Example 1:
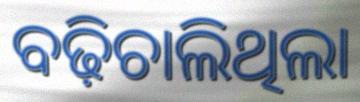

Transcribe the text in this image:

ବଢ଼ିଚାଲିଥିଲା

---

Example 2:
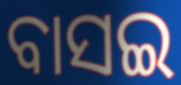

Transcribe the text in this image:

ବାସଇ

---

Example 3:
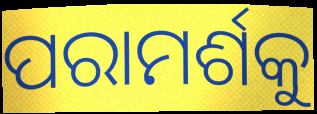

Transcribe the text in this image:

ପରାମର୍ଶକୁ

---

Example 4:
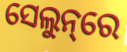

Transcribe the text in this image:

ସେଲୁନ୍‌ରେ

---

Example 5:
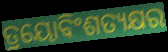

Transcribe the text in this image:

ତ୍ରୟୋବିଂଶତ୍ୟକ୍ଷର